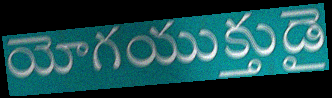
యోగయుక్తుడై